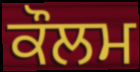
ਕੌਲਮ